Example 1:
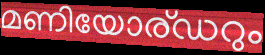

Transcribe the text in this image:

മണിയോര്ഡറും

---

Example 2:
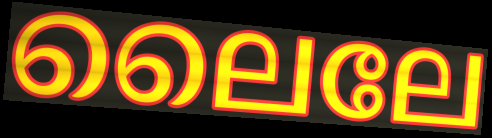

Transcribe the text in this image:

ലൈലേ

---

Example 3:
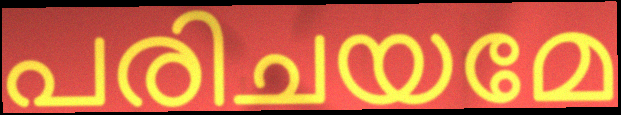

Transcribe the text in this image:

പരിചയമേ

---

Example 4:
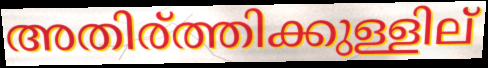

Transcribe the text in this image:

അതിര്ത്തിക്കുള്ളില്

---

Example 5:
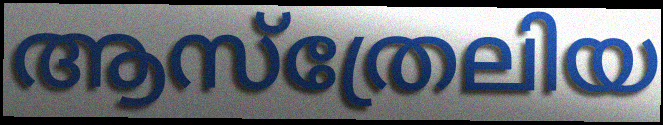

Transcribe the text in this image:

ആസ്ത്രേലിയ